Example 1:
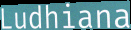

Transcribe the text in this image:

Ludhiana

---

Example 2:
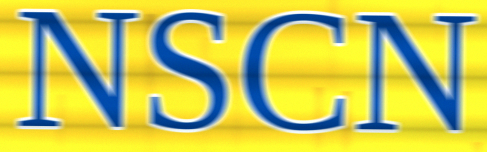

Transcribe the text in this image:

NSCN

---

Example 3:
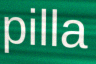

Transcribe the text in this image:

pilla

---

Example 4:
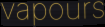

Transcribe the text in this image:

vapours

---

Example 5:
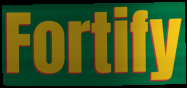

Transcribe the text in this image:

Fortify